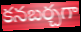
కనబర్చగా